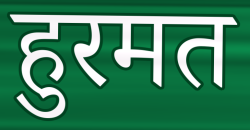
हुरमत